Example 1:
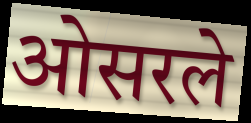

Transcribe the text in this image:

ओसरले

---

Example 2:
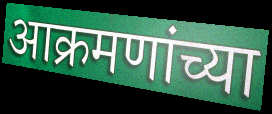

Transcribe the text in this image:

आक्रमणांच्या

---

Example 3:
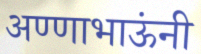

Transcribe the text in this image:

अण्णाभाऊंनी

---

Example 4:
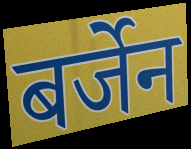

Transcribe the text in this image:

बर्जेन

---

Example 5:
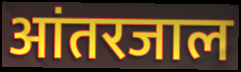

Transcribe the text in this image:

आंतरजाल